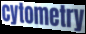
cytometry